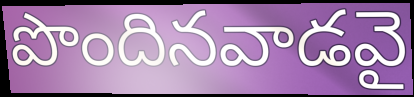
పొందినవాడవై